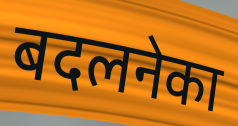
बदलनेका